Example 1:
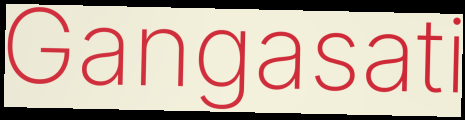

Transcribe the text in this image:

Gangasati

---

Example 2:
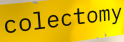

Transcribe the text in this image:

colectomy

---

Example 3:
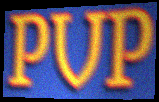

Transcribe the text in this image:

PUP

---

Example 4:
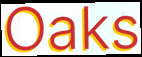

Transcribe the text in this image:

Oaks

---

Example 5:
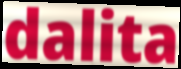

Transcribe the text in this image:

dalita